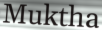
Muktha